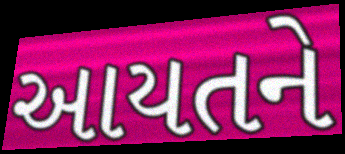
આયતને